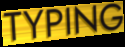
TYPING